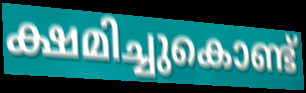
ക്ഷമിച്ചുകൊണ്ട്